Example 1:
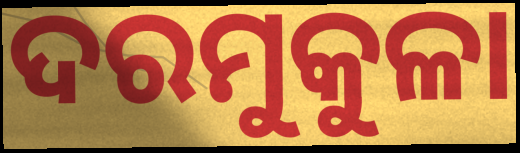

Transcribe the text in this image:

ଦରମୁକୁଳା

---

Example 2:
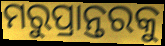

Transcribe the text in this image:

ମରୁପ୍ରାନ୍ତରକୁ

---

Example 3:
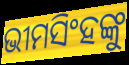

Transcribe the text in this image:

ଭୀମସିଂହଙ୍କୁ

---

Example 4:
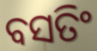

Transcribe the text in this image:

ବସତିଂ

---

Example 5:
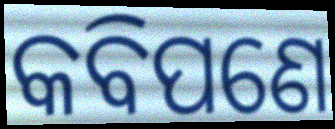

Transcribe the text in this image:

କବିପଣେ